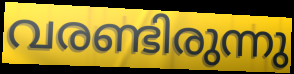
വരണ്ടിരുന്നു